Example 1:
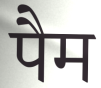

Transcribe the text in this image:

पैम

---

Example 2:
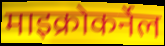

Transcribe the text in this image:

माइक्रोकर्नेल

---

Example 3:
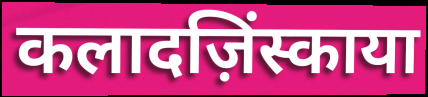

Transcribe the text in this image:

कलादज़िंस्काया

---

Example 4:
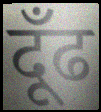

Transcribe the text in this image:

दूँढ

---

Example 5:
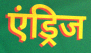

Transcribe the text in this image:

एंड्रिज